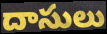
దాసులు